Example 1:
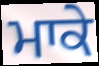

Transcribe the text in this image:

ਮਾਕੇ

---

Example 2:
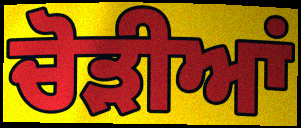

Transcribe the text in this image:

ਚੋੜੀਆਂ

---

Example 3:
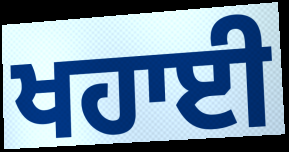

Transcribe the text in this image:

ਖਹਾਈ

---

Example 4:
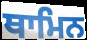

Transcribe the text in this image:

ਥਾਮਿਨ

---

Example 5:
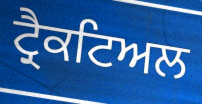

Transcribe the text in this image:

ਟ੍ਰੈਕਟਿਅਲ